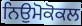
ਨਿਉਮੋਕੋਕਲ